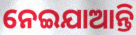
ନେଇଯାଆନ୍ତି